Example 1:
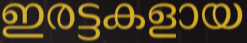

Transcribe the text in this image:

ഇരട്ടകളായ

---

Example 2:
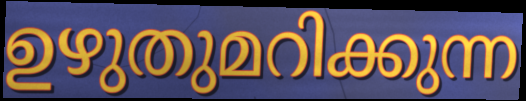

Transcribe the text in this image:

ഉഴുതുമറിക്കുന്ന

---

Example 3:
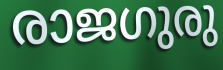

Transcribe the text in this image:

രാജഗുരു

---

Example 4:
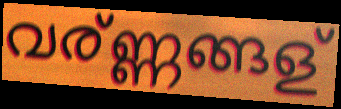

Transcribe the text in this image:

വര്ണ്ണങ്ങള്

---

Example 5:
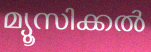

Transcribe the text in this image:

മ്യൂസിക്കൽ